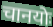
चानयोः